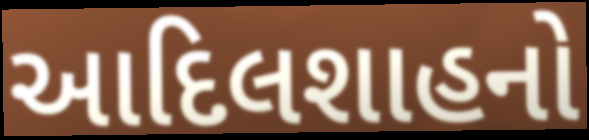
આદિલશાહનો